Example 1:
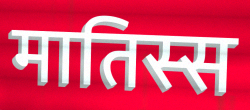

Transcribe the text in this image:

मातिस्स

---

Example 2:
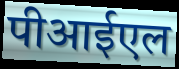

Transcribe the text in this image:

पीआईएल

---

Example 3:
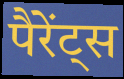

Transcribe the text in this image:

पैरेंट्स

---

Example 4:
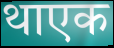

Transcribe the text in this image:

थाएक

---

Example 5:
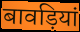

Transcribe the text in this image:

बावड़ियां